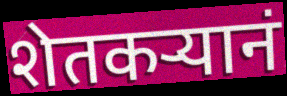
शेतकर्‍यानं